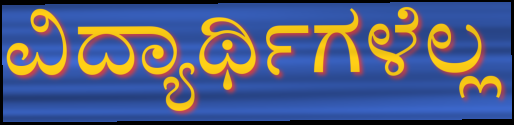
ವಿದ್ಯಾರ್ಥಿಗಳೆಲ್ಲ